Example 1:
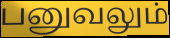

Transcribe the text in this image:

பனுவலும்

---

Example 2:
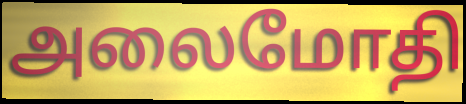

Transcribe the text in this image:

அலைமோதி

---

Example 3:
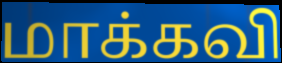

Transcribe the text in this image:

மாக்கவி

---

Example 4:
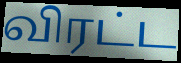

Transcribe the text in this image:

விரட்ட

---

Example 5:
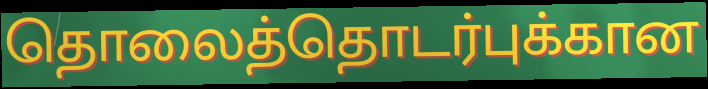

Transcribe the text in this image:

தொலைத்தொடர்புக்கான